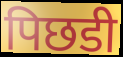
पिछडी